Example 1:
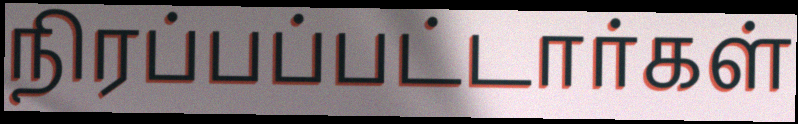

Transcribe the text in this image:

நிரப்பப்பட்டார்கள்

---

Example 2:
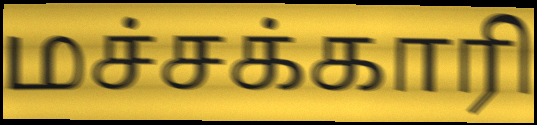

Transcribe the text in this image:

மச்சக்காரி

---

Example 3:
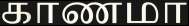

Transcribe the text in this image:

காணமா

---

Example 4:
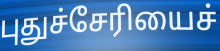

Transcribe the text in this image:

புதுச்சேரியைச்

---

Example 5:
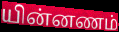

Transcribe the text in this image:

யின்னணம்